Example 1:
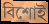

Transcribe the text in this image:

বিশোই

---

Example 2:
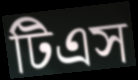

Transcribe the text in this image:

টিএস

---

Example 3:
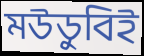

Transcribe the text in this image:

মউডুবিই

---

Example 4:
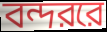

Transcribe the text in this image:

বন্দররে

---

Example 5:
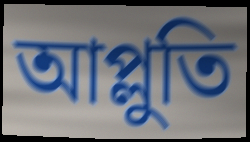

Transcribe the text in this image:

আপ্লুতি